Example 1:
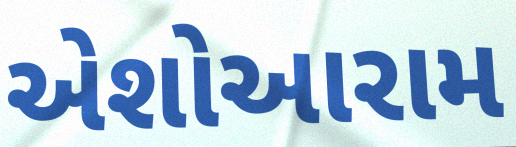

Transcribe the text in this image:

એશોઆરામ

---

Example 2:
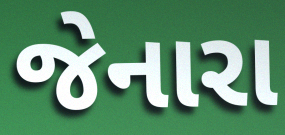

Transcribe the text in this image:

જેનારા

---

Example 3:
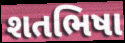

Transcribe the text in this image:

શતભિષા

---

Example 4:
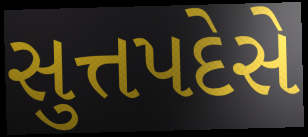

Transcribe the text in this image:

સુત્તપદેસે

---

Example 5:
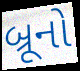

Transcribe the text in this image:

બ્રૂનો